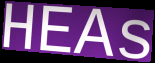
HEAs